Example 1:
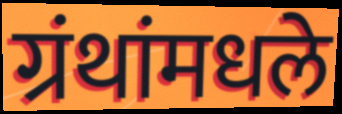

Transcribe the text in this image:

ग्रंथांमधले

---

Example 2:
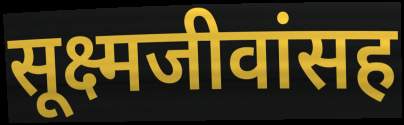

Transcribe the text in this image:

सूक्ष्मजीवांसह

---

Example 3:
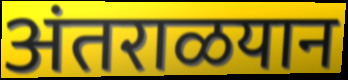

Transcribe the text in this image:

अंतराळयान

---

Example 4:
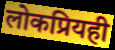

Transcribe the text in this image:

लोकप्रियही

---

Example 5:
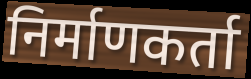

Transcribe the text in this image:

निर्माणकर्ता